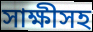
সাক্ষীসহ